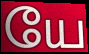
யே